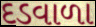
દડવાળા